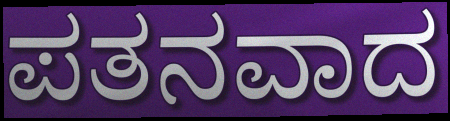
ಪತನವಾದ